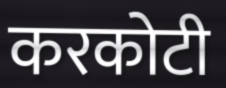
करकोटी